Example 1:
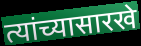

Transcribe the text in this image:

त्यांच्यासारखे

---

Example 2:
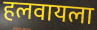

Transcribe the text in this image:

हलवायला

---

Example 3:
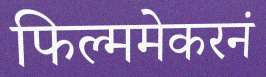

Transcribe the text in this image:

फिल्ममेकरनं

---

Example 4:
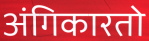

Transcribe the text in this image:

अंगिकारतो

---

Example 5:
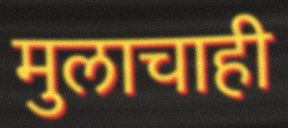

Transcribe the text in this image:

मुलाचाही